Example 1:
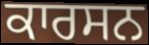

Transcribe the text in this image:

ਕਾਰਸਨ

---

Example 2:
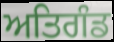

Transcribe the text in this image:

ਅਤਿਗੰਡ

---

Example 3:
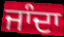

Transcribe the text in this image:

ਜਾੰਦਾ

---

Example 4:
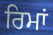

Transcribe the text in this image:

ਰਿਮਾਂ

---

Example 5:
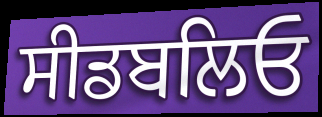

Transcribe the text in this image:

ਸੀਡਬਲਿਓ